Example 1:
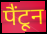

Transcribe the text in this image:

पैंटून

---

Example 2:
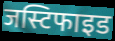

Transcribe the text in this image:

जस्टिफाइड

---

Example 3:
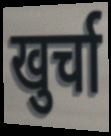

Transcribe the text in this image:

खुर्चा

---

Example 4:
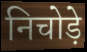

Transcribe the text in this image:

निचोड़े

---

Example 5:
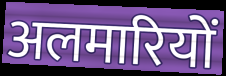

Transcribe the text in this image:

अलमारियों